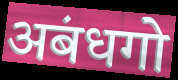
अबंधगो